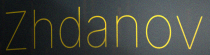
Zhdanov